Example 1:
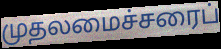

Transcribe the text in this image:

முதலமைச்சரைப்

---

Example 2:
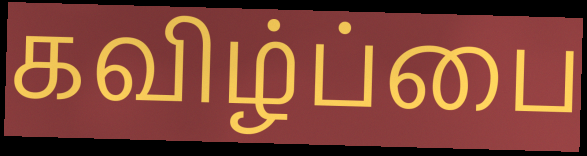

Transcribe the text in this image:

கவிழ்ப்பை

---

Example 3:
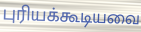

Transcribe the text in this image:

புரியக்கூடியவை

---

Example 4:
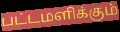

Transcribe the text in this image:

பட்டமளிக்கும்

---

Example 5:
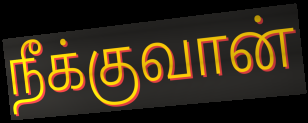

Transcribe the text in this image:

நீக்குவான்